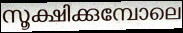
സൂക്ഷിക്കുമ്പോലെ